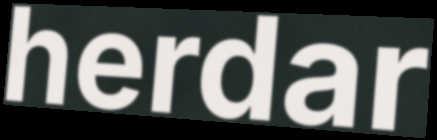
herdar